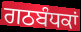
ਗਠਬੰਧਕਾਂ